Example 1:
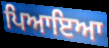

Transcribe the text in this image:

ਪਿਆਇਆ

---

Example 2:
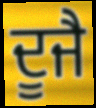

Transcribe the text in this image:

ਦੂਜੈ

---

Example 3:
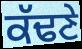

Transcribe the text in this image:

ਕੱਢਣੇ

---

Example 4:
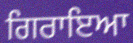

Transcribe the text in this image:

ਗਿਰਾਇਆ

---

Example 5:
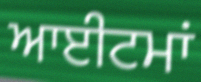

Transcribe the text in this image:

ਆਈਟਮਾਂ